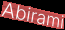
Abirami